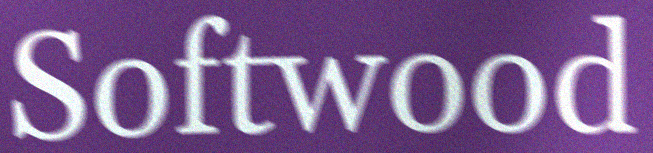
Softwood